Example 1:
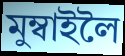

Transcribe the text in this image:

মুম্বাইলৈ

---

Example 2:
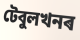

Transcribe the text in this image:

টেবুলখনৰ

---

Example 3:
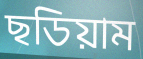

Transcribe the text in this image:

ছডিয়াম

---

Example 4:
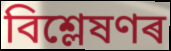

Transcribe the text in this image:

বিশ্লেষণৰ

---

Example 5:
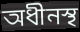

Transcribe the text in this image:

অধীনস্থ